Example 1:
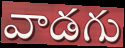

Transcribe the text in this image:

వాడగు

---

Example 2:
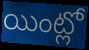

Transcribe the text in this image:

యింట్లో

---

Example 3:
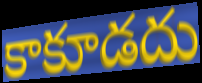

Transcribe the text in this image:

కాకూడదు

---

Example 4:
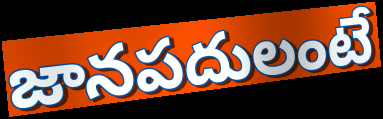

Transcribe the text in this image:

జానపదులంటే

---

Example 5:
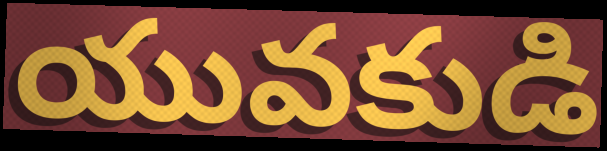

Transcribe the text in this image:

యువకుడి